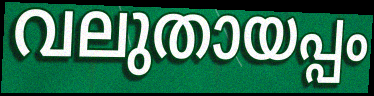
വലുതായപ്പം